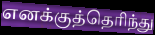
எனக்குத்தெரிந்து